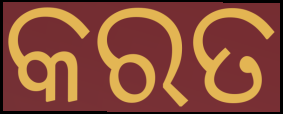
କରତ